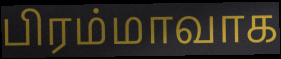
பிரம்மாவாக